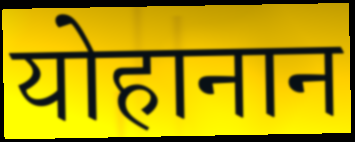
योहानान